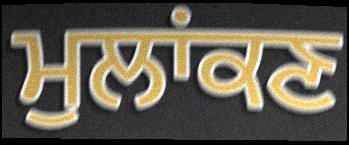
ਮੁਲਾਂਕਣ